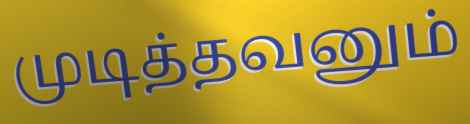
முடித்தவனும்